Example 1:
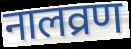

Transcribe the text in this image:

नालव्रण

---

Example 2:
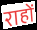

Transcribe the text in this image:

राहों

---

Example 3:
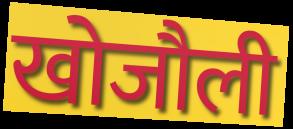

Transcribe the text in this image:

खोजौली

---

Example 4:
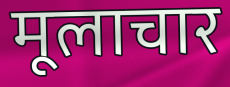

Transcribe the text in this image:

मूलाचार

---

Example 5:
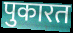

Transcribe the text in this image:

पुकारत